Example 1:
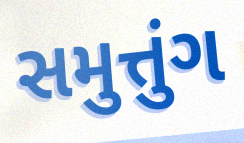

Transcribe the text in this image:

સમુત્તુંગ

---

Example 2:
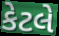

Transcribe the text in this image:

કેટલે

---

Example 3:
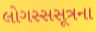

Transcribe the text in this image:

લોગસ્સસૂત્રના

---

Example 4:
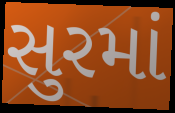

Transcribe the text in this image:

સુરમાં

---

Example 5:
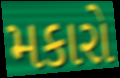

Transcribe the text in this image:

મકારો